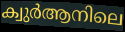
ക്വുർആനിലെ